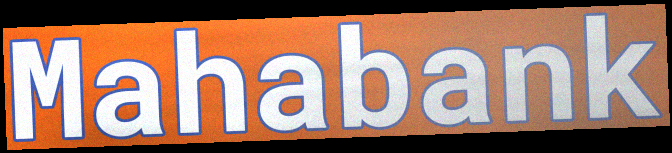
Mahabank